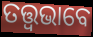
ତତ୍ତ୍ଵଭାବେ